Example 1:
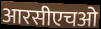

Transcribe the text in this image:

आरसीएचओ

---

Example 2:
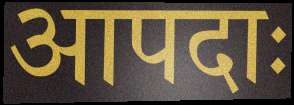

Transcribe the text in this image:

आपदाः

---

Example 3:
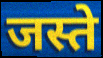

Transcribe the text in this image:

जस्ते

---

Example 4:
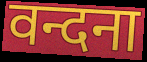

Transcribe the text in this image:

वन्दना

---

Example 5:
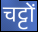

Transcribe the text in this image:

चट्टों